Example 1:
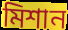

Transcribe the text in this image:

মিশান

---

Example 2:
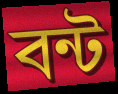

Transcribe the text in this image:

বন্ট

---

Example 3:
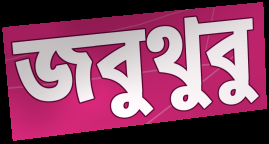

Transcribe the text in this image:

জবুথুবু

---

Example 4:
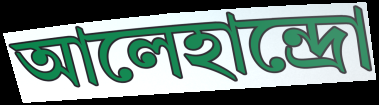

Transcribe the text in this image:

আলেহান্দ্রো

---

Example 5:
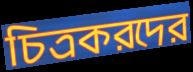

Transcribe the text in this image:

চিত্রকরদের